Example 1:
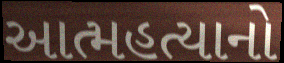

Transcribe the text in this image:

આત્મહત્યાનો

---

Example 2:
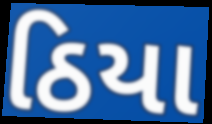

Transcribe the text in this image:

ઠિયા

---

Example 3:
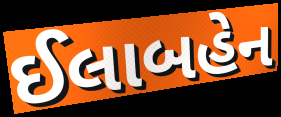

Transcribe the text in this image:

ઈલાબહેન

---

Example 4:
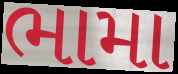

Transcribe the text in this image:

ભામા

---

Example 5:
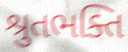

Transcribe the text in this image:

શ્રુતભક્તિ